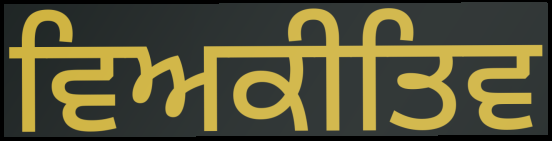
ਵਿਅਕੀਤਿਵ